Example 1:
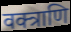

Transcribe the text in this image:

वक्त्राणि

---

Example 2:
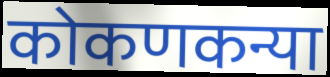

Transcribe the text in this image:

कोकणकन्या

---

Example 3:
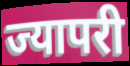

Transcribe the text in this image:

ज्यापरी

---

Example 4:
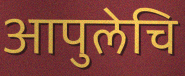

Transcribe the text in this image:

आपुलेचि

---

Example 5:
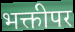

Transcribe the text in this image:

भक्तीपर